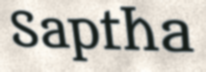
Saptha